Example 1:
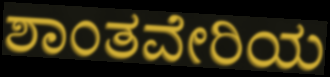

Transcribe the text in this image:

ಶಾಂತವೇರಿಯ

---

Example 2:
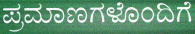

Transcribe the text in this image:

ಪ್ರಮಾಣಗಳೊಂದಿಗೆ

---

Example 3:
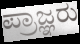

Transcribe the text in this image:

ಪ್ರಾಜ್ಞರು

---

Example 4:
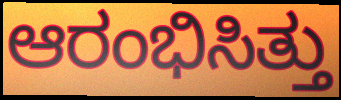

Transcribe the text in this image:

ಆರಂಭಿಸಿತ್ತು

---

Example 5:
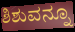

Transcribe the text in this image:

ಶಿಶುವನ್ನೂ